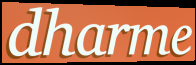
dharme